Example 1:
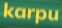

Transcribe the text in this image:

karpu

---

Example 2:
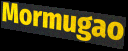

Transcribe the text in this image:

Mormugao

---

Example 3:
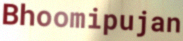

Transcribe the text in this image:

Bhoomipujan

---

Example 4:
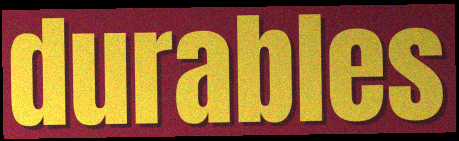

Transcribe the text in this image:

durables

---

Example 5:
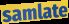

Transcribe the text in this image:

samlate